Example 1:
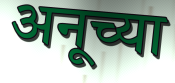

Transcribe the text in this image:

अनूच्या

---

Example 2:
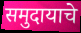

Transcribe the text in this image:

समुदायाचे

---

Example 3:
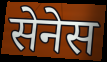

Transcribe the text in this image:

सेनेस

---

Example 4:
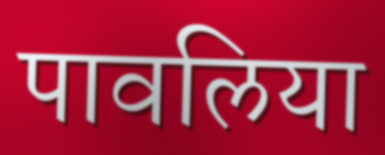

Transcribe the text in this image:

पावलिया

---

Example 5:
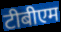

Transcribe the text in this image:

टीबीएम